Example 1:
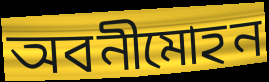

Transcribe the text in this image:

অবনীমোহন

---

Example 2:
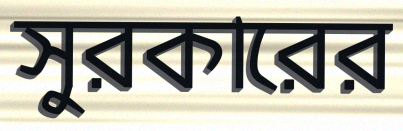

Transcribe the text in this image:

সুরকারের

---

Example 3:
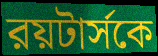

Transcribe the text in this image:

রয়টার্সকে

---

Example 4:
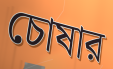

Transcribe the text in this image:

চোষার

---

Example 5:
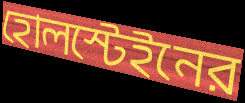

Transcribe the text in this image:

হোলস্টেইনের